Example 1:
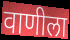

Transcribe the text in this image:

वाणीला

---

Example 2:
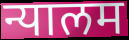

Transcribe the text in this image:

न्यालम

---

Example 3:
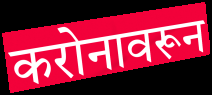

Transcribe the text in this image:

करोनावरून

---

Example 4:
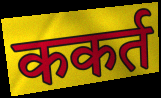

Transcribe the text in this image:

ककर्त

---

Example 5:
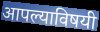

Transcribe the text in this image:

आपल्याविषयी